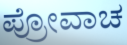
ಪ್ರೋವಾಚ